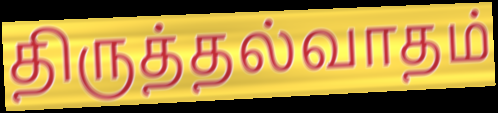
திருத்தல்வாதம்